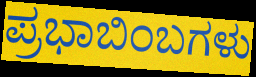
ಪ್ರಭಾಬಿಂಬಗಳು